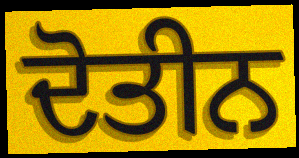
ਦੋਤੀਨ